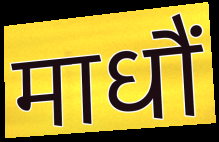
माधौं